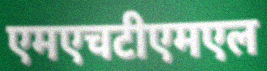
एमएचटीएमएल